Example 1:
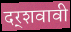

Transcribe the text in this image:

दर्शवावी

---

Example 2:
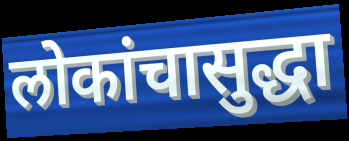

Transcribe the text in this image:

लोकांचासुद्धा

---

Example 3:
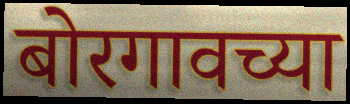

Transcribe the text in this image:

बोरगावच्या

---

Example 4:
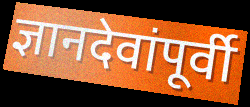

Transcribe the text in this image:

ज्ञानदेवांपूर्वी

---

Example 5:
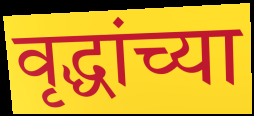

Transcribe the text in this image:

वृद्धांच्या